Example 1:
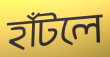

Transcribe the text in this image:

হাঁটলে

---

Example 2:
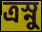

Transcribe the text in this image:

ত্রস্নু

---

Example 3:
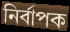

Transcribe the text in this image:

নির্বাপক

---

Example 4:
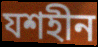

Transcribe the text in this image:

যশহীন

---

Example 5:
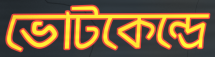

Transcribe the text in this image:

ভোটকেন্দ্রে